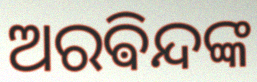
ଅରଵିନ୍ଦଙ୍କ